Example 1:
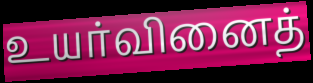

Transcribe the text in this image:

உயர்வினைத்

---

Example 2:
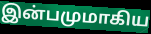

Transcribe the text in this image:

இன்பமுமாகிய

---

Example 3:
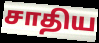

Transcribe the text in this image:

சாதிய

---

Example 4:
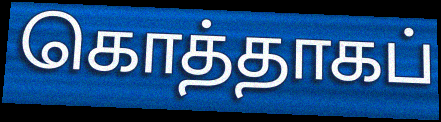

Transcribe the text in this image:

கொத்தாகப்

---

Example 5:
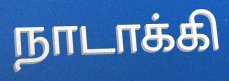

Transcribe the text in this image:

நாடாக்கி